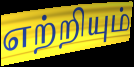
எற்றியும்